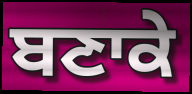
ਬਣਾਕੇ